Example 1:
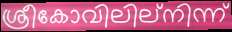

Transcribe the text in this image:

ശ്രീകോവിലില്നിന്ന്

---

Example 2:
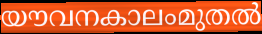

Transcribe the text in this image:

യൗവനകാലംമുതൽ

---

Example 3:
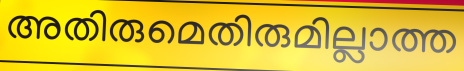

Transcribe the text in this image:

അതിരുമെതിരുമില്ലാത്ത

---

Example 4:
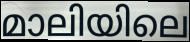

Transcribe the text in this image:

മാലിയിലെ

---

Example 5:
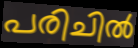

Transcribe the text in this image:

പരിചിൽ